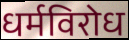
धर्मविरोध